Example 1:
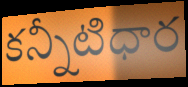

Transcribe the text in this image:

కన్నీటిధార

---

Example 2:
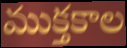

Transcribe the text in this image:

ముక్తకాల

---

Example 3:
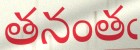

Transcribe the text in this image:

తనంతఁ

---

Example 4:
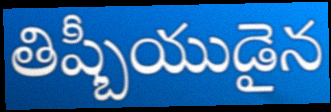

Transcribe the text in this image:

తిష్బీయుడైన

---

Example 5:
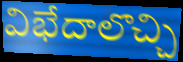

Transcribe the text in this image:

విభేదాలొచ్చి